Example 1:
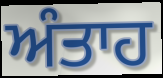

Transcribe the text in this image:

ਅੰਤਾਹ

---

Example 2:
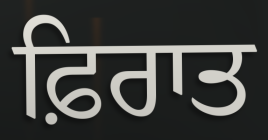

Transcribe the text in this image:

ਫ਼ਿਰਾਤ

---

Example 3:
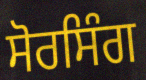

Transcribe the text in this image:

ਸੋਰਸਿੰਗ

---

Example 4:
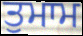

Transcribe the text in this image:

ਤੁਮਾਮ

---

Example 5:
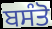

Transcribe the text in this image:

ਬਸੰਤੋ